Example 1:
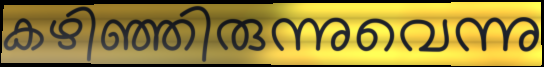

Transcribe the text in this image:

കഴിഞ്ഞിരുന്നുവെന്നു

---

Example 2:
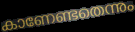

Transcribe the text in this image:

കാണേണ്ടതെന്നും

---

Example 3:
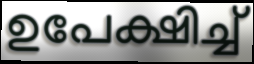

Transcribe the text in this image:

ഉപേക്ഷിച്ച്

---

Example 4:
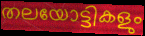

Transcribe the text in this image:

തലയോട്ടികളും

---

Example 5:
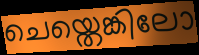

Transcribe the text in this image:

ചെയ്തെങ്കിലോ